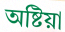
অষ্টিয়া